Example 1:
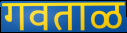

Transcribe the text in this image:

गवताळ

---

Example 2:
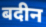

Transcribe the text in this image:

बदीन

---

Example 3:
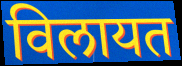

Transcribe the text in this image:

विलायत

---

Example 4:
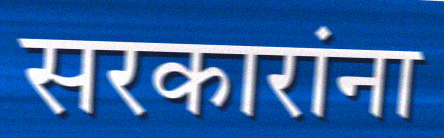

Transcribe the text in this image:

सरकारांना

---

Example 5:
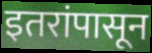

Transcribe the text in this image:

इतरांपासून